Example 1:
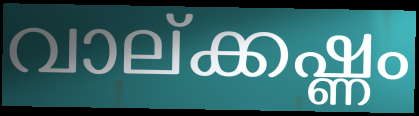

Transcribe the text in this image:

വാല്ക്കഷ്ണം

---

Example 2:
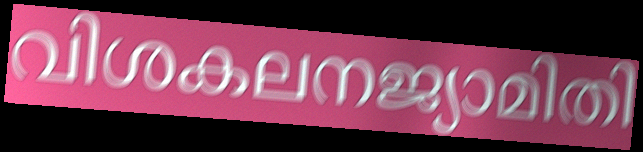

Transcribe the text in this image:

വിശകലനജ്യാമിതി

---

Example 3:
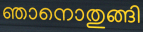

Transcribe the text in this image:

ഞാനൊതുങ്ങി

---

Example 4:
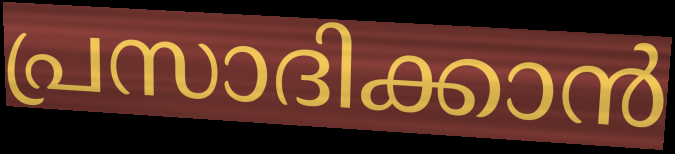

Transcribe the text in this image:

പ്രസാദിക്കാൻ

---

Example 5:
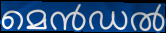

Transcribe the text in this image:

മെൻഡൽ